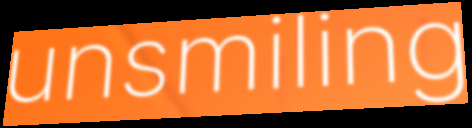
unsmiling